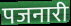
पजनारी